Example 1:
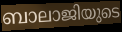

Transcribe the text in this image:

ബാലാജിയുടെ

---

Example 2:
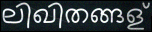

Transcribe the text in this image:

ലിഖിതങ്ങള്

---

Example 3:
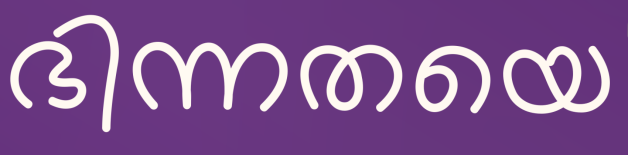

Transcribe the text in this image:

ഭിന്നതയെ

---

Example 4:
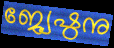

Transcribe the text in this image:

ജ്യേഷ്ഠനു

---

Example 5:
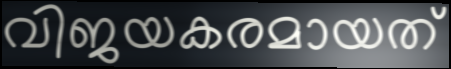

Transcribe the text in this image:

വിജയകരമായത്